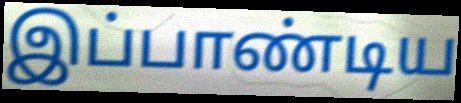
இப்பாண்டிய